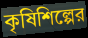
কৃষিশিল্পের